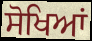
ਸੋਖਿਆਂ